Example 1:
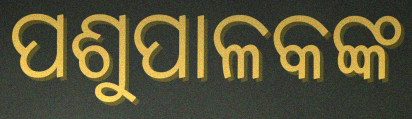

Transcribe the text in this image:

ପଶୁପାଳକଙ୍କ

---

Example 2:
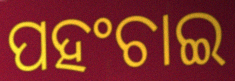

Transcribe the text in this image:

ପହଂଚାଇ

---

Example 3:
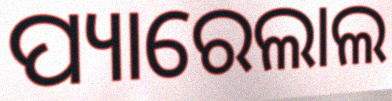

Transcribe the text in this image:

ପ୍ୟାରେଲାଲ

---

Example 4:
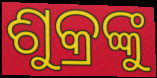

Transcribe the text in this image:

ଶୁକ୍ରଙ୍କୁ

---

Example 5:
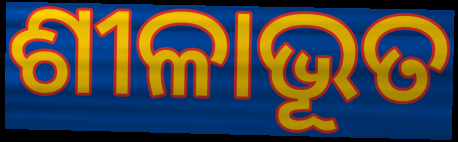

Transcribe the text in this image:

ଶୀଳାଭୂତ